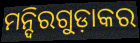
ମନ୍ଦିରଗୁଡ଼ାକର